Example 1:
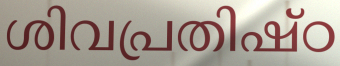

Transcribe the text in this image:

ശിവപ്രതിഷ്ഠ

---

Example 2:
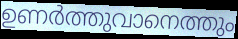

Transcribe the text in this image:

ഉണർത്തുവാനെത്തും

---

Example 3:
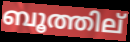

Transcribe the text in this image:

ബൂത്തില്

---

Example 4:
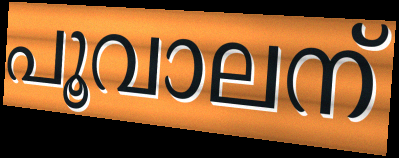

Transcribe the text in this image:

പൂവാലന്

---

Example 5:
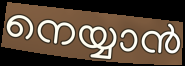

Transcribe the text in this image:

നെയ്യാൻ